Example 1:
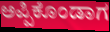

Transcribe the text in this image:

ಅಪ್ಪಿಕೊಂಡಾಗ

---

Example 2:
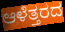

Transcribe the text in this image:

ಆಳೆತ್ತರದ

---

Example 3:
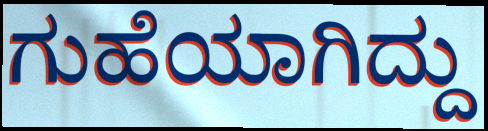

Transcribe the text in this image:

ಗುಹೆಯಾಗಿದ್ದು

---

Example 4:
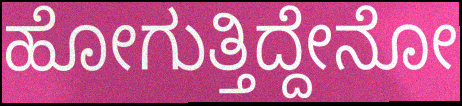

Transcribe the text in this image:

ಹೋಗುತ್ತಿದ್ದೇನೋ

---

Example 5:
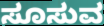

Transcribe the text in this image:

ಸೂಸುವ